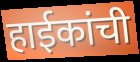
हाईकांची